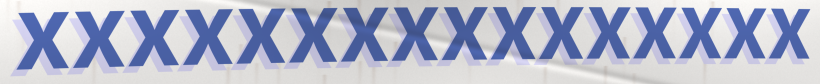
xxxxxxxxxxxxxxxx